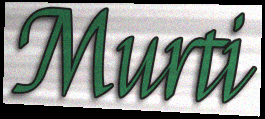
Murti